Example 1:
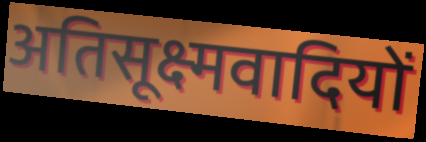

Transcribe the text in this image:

अतिसूक्ष्मवादियों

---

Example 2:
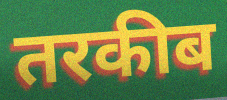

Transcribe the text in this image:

तरकीब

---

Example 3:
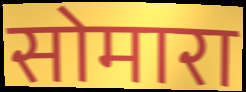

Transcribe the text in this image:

सोमारा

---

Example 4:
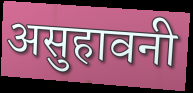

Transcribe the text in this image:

असुहावनी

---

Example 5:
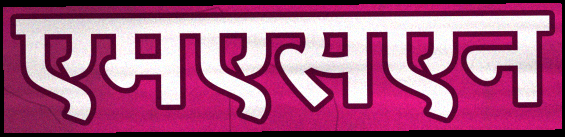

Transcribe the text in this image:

एमएसएन